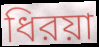
ধিরয়া